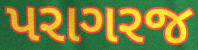
પરાગરજ